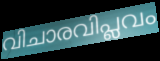
വിചാരവിപ്ലവം